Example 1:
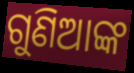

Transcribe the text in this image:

ଗୁଣିଆଙ୍କ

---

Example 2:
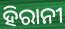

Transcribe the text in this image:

ହିରାନୀ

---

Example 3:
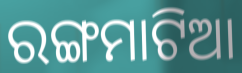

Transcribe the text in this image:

ରଙ୍ଗମାଟିଆ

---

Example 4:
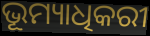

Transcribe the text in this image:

ଭୂମ୍ୟାଧିକରୀ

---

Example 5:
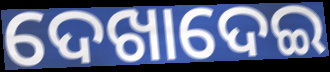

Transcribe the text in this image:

ଦେଖାଦେଇ